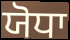
ਯੋਧਾ